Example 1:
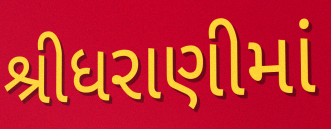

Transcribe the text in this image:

શ્રીધરાણીમાં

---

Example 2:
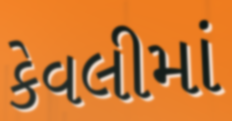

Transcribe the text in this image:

કેવલીમાં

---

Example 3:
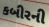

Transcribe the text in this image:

કબીરની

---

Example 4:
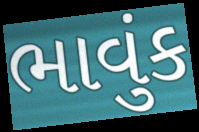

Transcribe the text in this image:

ભાવુંક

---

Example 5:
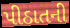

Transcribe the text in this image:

પીઠાતની